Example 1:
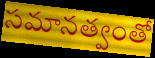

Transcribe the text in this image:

సమానత్వంతో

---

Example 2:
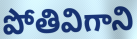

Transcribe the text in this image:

పోతివిగాని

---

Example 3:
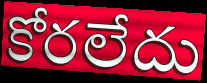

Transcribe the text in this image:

కోరలేదు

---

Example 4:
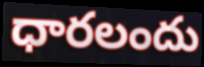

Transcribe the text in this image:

ధారలందు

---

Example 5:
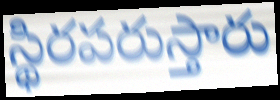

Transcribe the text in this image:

స్థిరపరుస్తారు